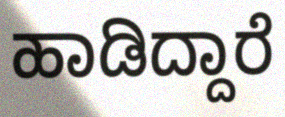
ಹಾಡಿದ್ದಾರೆ